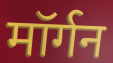
मॉर्गन